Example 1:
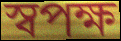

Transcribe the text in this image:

স্বপক্ষ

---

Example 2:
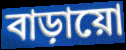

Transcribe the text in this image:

বাড়ায়ো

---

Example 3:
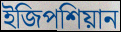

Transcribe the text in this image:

ইজিপশিয়ান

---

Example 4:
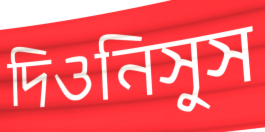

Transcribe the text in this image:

দিওনিসুস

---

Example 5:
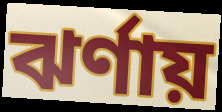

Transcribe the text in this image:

ঝর্ণায়